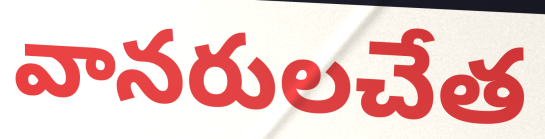
వానరులచేత